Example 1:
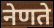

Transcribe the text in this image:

नेणते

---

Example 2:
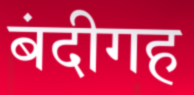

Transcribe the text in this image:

बंदीगह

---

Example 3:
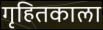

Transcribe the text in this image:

गृहितकाला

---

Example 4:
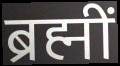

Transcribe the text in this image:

ब्रह्मीं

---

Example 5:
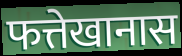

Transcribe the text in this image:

फत्तेखानास